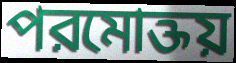
পরমোক্তয়